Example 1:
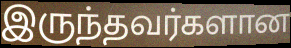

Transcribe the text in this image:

இருந்தவர்களான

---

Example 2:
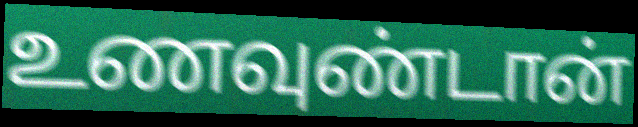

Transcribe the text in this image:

உணவுண்டான்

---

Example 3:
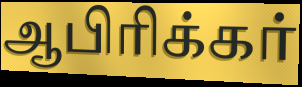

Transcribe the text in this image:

ஆபிரிக்கர்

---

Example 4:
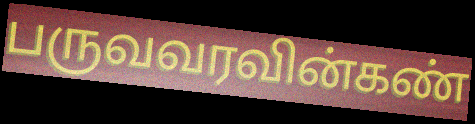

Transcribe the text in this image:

பருவவரவின்கண்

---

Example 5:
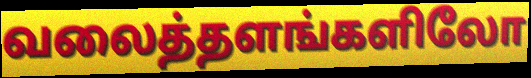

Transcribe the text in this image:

வலைத்தளங்களிலோ